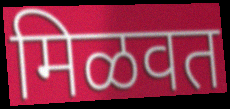
मिळवत